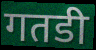
गतडी